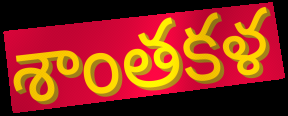
శాంతకళ